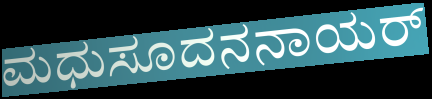
ಮಧುಸೂದನನಾಯರ್